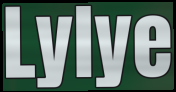
Lylye